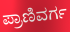
ಪ್ರಾಣಿವರ್ಗ